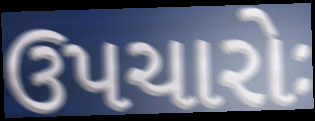
ઉપચારોઃ